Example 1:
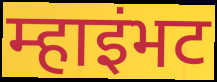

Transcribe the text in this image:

म्हाइंभट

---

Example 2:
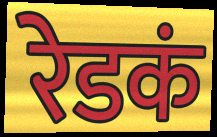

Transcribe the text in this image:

रेडकं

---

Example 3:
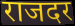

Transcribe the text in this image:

राजदर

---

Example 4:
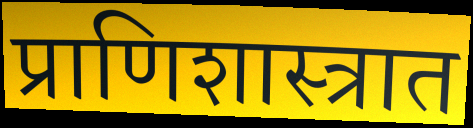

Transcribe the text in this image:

प्राणिशास्त्रात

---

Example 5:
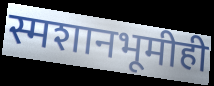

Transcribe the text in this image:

स्मशानभूमीही